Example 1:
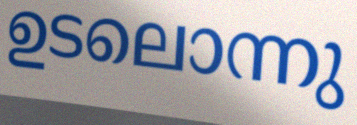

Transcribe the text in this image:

ഉടലൊന്നു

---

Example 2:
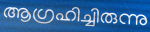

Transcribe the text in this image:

ആഗ്രഹിച്ചിരുന്നു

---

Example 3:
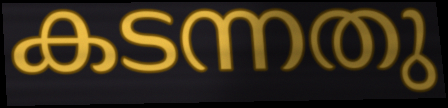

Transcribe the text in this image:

കടന്നതു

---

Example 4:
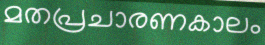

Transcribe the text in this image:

മതപ്രചാരണകാലം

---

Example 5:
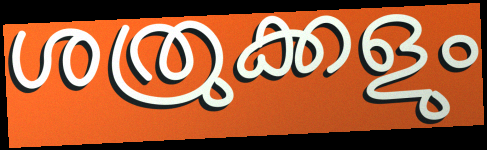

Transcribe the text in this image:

ശത്രുക്കളും